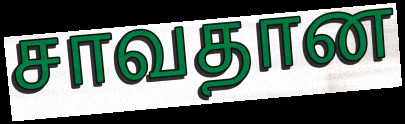
சாவதான